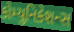
કોમ્યુનિકેશન્સ